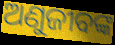
ଅଣୁଜୀବଙ୍କ